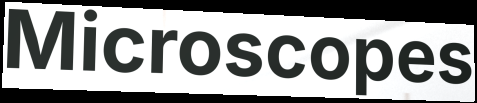
Microscopes